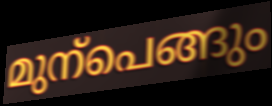
മുന്പെങ്ങും